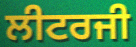
ਲੀਟਰਜੀ